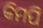
କିମପି